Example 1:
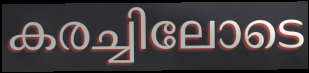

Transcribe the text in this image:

കരച്ചിലോടെ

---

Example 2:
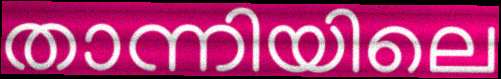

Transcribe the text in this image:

താന്നിയിലെ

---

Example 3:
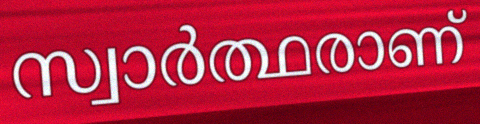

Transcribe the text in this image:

സ്വാർത്ഥരാണ്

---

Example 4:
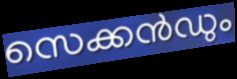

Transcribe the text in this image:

സെക്കൻഡും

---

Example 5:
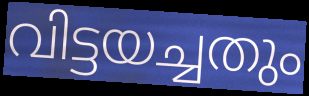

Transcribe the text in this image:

വിട്ടയച്ചതും